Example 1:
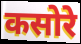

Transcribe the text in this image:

कसोरे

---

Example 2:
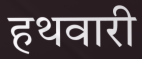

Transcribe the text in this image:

हथवारी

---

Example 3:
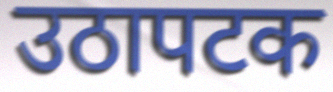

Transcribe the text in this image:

उठापटक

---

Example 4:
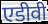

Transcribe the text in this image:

एडीवी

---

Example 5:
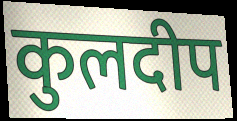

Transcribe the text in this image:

कुलदीप